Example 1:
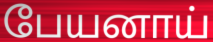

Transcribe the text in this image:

பேயனாய்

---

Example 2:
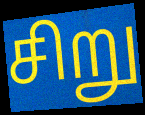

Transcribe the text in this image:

சிறு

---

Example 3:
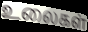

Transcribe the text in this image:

உலைகள்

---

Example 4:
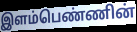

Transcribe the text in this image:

இளம்பெண்ணின்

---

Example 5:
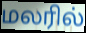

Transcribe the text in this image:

மலரில்